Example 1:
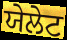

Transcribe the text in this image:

ਯੇਲੇਟ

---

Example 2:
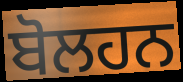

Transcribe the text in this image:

ਬੋਲਹਨ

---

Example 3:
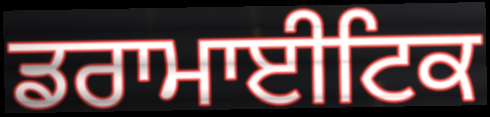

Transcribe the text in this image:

ਡਰਾਮਾਈਟਿਕ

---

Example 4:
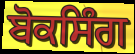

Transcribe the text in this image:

ਬੋਕਸਿੰਗ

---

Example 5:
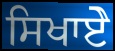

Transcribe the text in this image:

ਸਿਖਾਏੇ